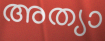
അത്യാ